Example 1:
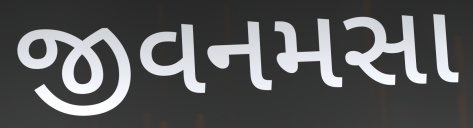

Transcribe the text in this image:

જીવનમસા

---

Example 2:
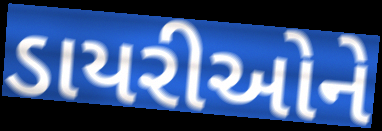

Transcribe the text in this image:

ડાયરીઓને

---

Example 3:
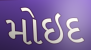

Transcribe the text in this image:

મોઇદ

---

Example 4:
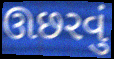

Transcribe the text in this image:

ઊછરવું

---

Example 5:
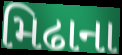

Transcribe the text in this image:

મિઢાના